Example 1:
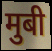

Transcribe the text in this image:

मुबी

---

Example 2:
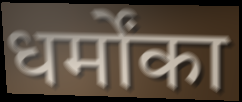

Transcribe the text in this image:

धर्मोंका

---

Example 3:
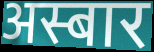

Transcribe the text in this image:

अस्बार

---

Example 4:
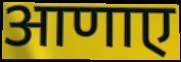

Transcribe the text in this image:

आणाए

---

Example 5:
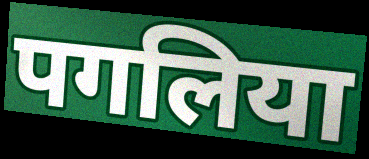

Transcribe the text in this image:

पगलिया